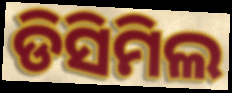
ଡିସିମିଲ